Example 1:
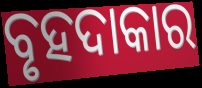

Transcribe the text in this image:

ବୃହଦାକାର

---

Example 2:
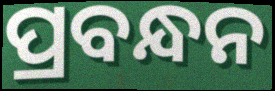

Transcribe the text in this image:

ପ୍ରବନ୍ଧନ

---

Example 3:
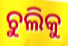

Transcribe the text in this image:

ଚୁଲିକୁ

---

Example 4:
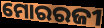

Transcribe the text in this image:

ମୋରରଜୀ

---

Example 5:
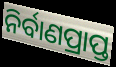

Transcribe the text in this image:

ନିର୍ବାଣପ୍ରାପ୍ତ